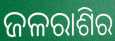
ଜଳରାଶିର